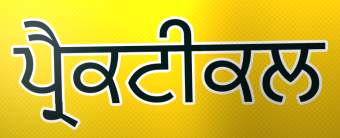
ਪ੍ਰੈਕਟੀਕਲ